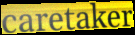
caretaker